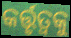
କର୍ତ୍ତୃତ୍ୱକୁ